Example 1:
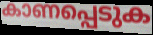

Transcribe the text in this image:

കാണപ്പെടുക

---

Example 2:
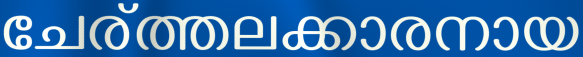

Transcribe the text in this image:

ചേര്ത്തലക്കാരനായ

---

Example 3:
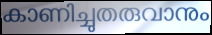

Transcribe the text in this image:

കാണിച്ചുതരുവാനും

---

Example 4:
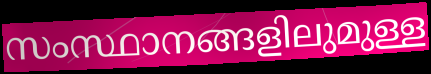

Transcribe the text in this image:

സംസ്ഥാനങ്ങളിലുമുള്ള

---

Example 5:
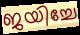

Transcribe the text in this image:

ജയിച്ചേ